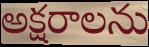
అక్షరాలను